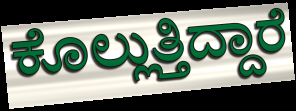
ಕೊಲ್ಲುತ್ತಿದ್ದಾರೆ